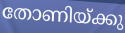
തോണിയ്ക്കു